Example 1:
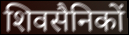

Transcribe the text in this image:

शिवसैनिकों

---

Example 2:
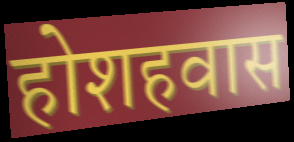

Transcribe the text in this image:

होशहवास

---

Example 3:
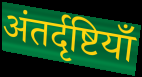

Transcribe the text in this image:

अंतर्दृष्टियाँ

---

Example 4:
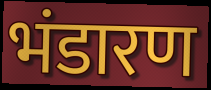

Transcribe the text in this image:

भंडारण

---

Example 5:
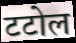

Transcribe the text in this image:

टटोल